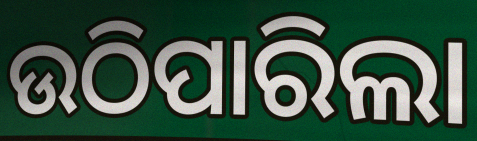
ଉଠିପାରିଲା